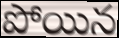
పోయిన